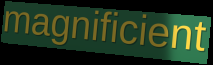
magnificient